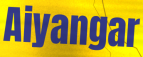
Aiyangar